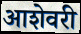
आशेवरी